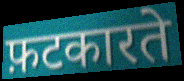
फ़टकारते